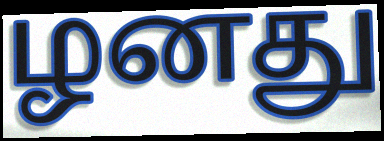
ழனது